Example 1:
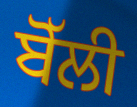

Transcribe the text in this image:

ਬੋੱਲੀ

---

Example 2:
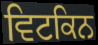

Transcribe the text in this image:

ਵਿਟਕਿਨ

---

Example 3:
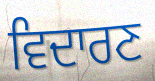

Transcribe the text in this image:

ਵਿਦਾਰਣ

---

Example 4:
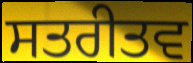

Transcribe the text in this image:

ਸਤਰੀਤਵ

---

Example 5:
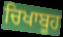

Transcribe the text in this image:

ਚਿਖਾਬੂਹ